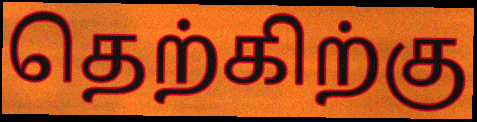
தெற்கிற்கு